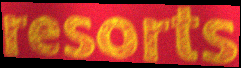
resorts